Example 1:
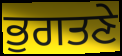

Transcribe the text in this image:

ਭੁਗਤਣੇ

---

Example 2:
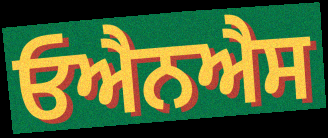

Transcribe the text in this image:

ਓਐਨਐਸ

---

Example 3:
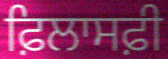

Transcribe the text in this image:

ਫ਼ਿਲਾਸਫ਼ੀ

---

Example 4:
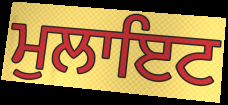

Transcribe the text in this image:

ਮੁਲਾਇਟ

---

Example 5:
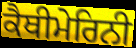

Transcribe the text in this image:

ਕੈਥੀਮੇਰਿਨੀ